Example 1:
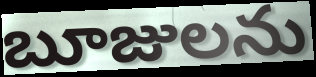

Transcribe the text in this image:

బూజులను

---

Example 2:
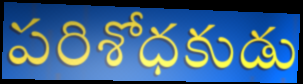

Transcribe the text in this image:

పరిశోధకుడు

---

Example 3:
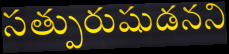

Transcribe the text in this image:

సత్పురుషుడనని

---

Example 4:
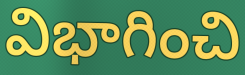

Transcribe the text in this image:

విభాగించి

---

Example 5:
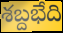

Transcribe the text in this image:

శబ్దభేది